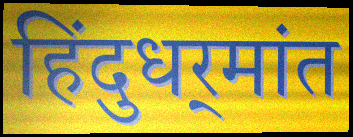
हिंदुधर्मांत